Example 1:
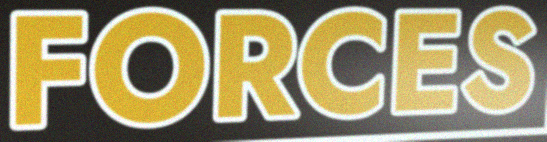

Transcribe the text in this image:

FORCES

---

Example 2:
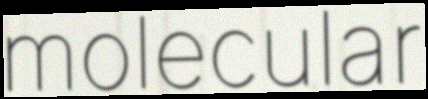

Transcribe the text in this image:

molecular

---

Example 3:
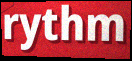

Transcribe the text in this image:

rythm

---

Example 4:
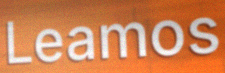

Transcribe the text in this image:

Leamos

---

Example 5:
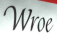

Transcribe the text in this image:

Wroe